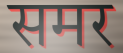
समर